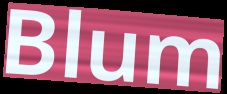
Blum